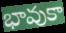
భావుకా